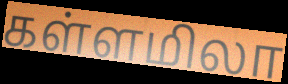
கள்ளமிலா